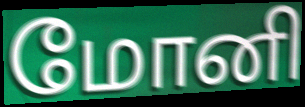
மோனி